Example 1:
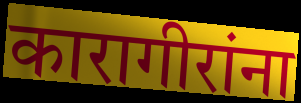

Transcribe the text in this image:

कारागीरांना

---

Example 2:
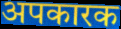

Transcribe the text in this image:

अपकारक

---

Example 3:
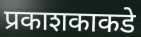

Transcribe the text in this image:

प्रकाशकाकडे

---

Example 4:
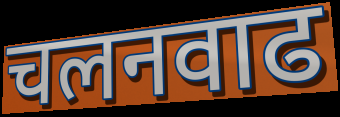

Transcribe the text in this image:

चलनवाढ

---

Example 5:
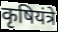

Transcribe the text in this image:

कृषियंत्रे